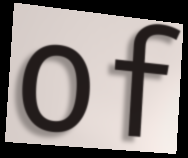
of